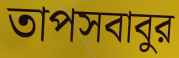
তাপসবাবুর